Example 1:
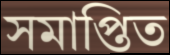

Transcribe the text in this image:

সমাপ্তিত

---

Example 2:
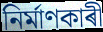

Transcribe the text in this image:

নিৰ্মাণকাৰী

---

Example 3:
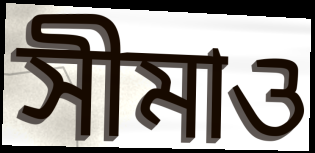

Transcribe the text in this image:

সীমাও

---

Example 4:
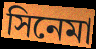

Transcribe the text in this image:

সিনেমা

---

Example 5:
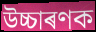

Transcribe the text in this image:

উচ্চাৰণক